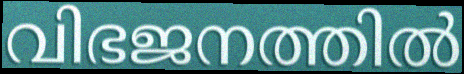
വിഭജനത്തിൽ